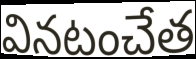
వినటంచేత